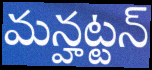
మన్హట్టన్